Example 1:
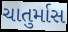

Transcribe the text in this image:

ચાતુર્માસ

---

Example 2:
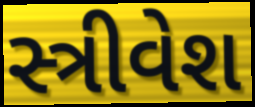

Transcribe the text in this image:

સ્ત્રીવેશ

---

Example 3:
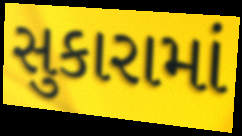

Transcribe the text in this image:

સુકારામાં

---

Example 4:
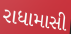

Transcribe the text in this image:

રાધામાસી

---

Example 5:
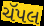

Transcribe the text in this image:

ચૅપલ